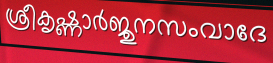
ശ്രീകൃഷ്ണാർജുനസംവാദേ